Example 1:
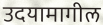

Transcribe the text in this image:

उदयामागील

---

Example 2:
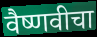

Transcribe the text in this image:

वैष्णवीचा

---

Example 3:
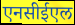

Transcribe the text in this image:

एनसीईएल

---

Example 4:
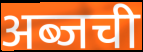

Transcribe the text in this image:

अब्जची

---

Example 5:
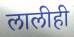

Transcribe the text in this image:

लालीही